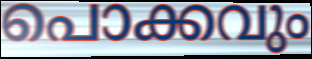
പൊക്കവും